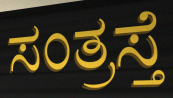
ಸಂತ್ರಸ್ತೆ